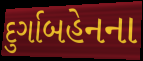
દુર્ગાબહેનના